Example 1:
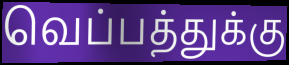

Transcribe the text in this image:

வெப்பத்துக்கு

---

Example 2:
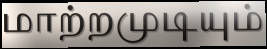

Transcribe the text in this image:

மாற்றமுடியும்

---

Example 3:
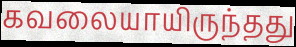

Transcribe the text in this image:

கவலையாயிருந்தது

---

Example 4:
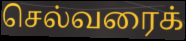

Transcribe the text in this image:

செல்வரைக்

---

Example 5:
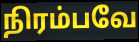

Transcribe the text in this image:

நிரம்பவே